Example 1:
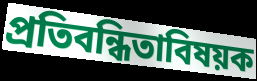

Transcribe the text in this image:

প্রতিবন্ধিতাবিষয়ক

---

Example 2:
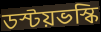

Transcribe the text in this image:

ডস্টয়ভস্কি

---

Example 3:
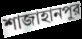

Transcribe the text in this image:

শাজাহানপুর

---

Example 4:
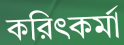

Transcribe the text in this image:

করিৎকর্মা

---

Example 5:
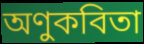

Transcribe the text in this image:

অণুকবিতা